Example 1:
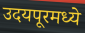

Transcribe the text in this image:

उदयपूरमध्ये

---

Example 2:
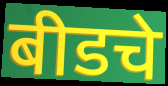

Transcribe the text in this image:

बीडचे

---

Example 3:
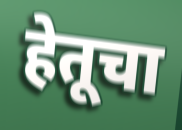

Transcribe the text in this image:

हेतूचा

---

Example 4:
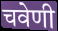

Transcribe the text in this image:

चवेणी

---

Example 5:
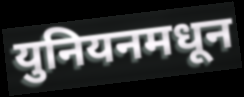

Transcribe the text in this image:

युनियनमधून